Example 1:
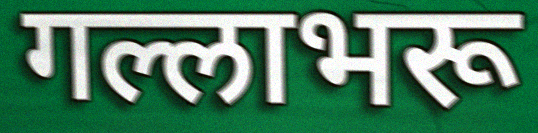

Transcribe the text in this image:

गल्लाभरू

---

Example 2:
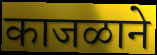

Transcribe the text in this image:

काजळाने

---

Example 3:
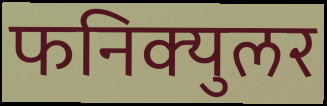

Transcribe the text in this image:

फनिक्युलर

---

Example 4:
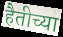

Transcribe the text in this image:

हैतीच्या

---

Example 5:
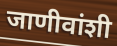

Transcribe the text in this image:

जाणीवांशी